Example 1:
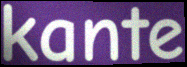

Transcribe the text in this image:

kante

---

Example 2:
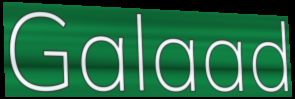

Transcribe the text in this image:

Galaad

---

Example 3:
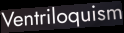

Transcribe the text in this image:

Ventriloquism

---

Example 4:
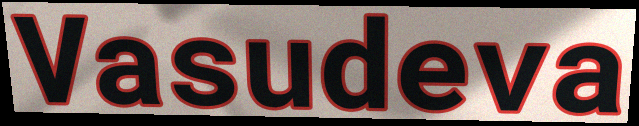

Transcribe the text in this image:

Vasudeva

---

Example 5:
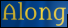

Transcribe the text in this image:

Along